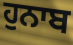
ਹੁਨਾਬ